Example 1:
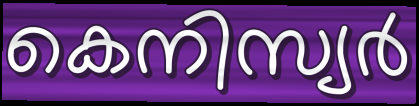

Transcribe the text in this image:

കെനിസ്യർ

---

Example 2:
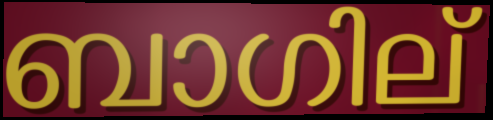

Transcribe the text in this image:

ബാഗില്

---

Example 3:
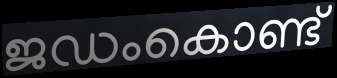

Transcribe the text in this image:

ജഡംകൊണ്ട്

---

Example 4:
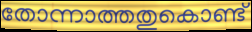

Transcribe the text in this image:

തോന്നാത്തതുകൊണ്ട്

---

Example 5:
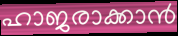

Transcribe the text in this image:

ഹാജരാക്കാൻ